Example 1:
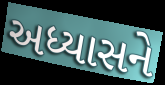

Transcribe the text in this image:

અધ્યાસને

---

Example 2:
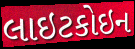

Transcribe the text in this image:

લાઇટકોઇન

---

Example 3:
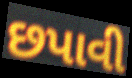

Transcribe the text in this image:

છપાવી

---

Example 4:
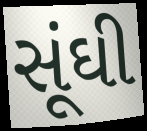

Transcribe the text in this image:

સૂંઘી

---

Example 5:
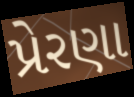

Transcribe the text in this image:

પ્રેરણા